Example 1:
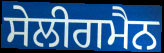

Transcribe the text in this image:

ਸੇਲੀਗਮੈਨ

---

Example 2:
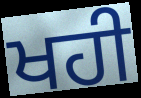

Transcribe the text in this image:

ਖਹੀ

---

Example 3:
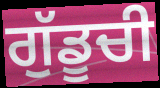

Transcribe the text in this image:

ਗੁੱਡੂਚੀ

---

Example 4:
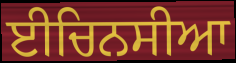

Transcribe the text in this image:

ਈਚਿਨਸੀਆ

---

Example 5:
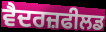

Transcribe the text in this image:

ਵੈਦਰਜ਼ਫੀਲਡ